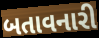
બતાવનારી